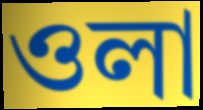
ওলা